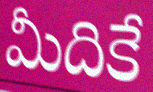
మీదికే